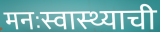
मनःस्वास्थ्याची